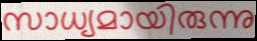
സാധ്യമായിരുന്നു